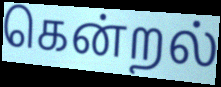
கென்றல்